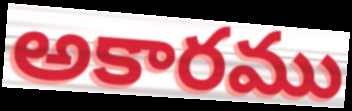
అకారము